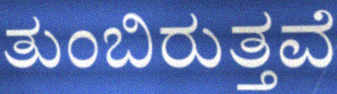
ತುಂಬಿರುತ್ತವೆ